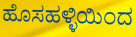
ಹೊಸಹಳ್ಳಿಯಿಂದ